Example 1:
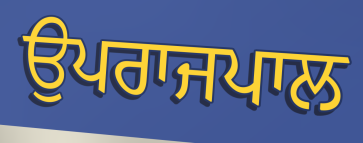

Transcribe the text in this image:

ਉਪਰਾਜਪਾਲ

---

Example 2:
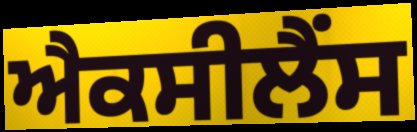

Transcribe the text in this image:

ਐਕਸੀਲੈਂਸ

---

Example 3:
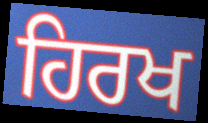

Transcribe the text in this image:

ਹਿਰਖ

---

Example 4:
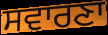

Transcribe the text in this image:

ਸਵਾਰਣਾ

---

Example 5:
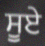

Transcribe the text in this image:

ਸੂਏ